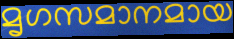
മൃഗസമാനമായ